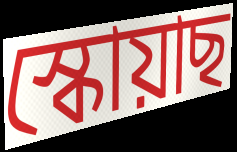
স্কোয়াছ